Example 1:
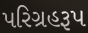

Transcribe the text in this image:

પરિગ્રહરૂપ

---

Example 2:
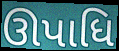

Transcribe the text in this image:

ઊપાધિ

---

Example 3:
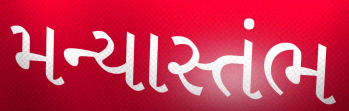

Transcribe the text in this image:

મન્યાસ્તંભ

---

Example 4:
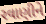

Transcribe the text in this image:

રવાણીને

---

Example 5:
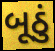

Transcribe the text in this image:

બૂઠું